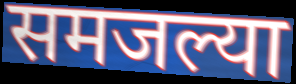
समजल्या